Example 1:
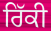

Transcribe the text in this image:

ਰਿੱਕੀ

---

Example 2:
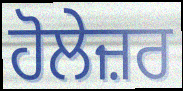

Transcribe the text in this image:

ਹੋਲੇਜ਼ਰ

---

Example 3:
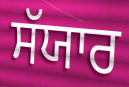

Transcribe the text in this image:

ਸੱਯਾਰ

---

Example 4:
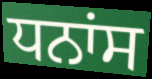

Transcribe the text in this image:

ਧਨਾਂਸ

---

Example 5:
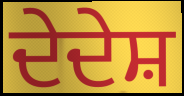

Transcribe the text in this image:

ਦੇਦੇਸ਼